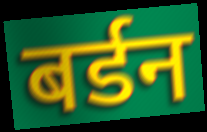
बर्डन